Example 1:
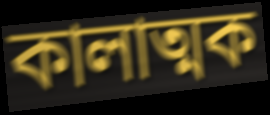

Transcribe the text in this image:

কালাত্মক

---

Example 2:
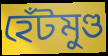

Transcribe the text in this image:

হেঁটমুণ্ড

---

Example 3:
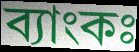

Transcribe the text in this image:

ব্যাংকঃ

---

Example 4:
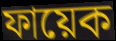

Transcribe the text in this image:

ফায়েক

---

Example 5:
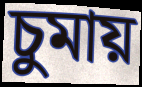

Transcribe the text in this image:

চুমায়